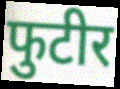
फुटीर